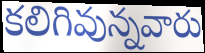
కలిగివున్నవారు